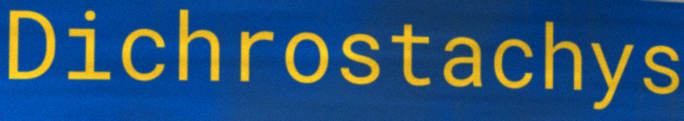
Dichrostachys